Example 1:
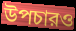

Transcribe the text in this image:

উপচারও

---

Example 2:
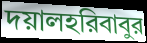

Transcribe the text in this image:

দয়ালহরিবাবুর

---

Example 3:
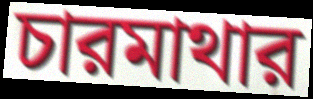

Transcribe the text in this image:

চারমাথার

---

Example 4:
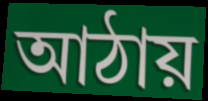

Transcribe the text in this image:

আঠায়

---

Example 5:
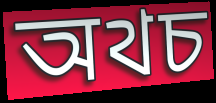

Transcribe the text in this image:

অথচ